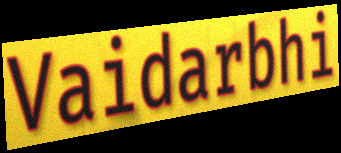
Vaidarbhi